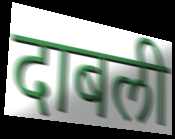
दाबली